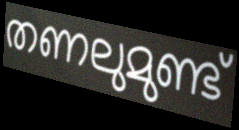
തണലുമുണ്ട്